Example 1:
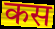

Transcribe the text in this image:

कस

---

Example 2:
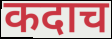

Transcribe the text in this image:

कदाच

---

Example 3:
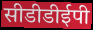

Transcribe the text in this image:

सीडीडीईपी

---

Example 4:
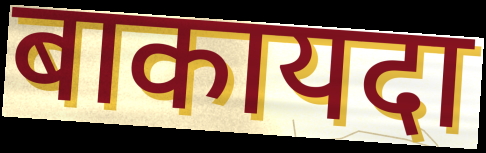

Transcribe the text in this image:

बाकायदा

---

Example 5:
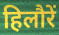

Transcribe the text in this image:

हिलौरें